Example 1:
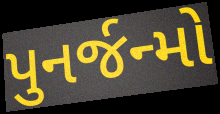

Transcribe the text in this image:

પુનર્જન્મો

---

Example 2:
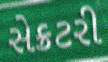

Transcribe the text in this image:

સેક્રટરી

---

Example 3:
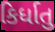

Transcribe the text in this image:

કિર્ધાતુ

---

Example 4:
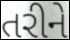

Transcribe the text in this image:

તરીને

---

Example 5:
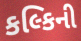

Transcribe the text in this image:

કલ્કિની